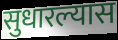
सुधारल्यास